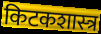
किटकशास्‍त्र